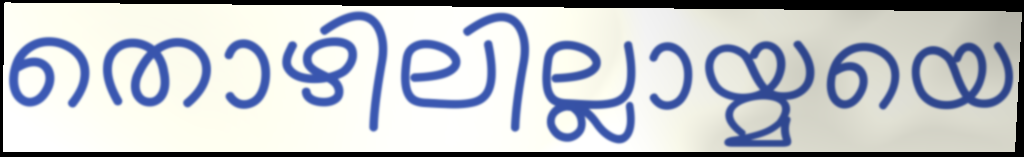
തൊഴിലില്ലായ്മയെ